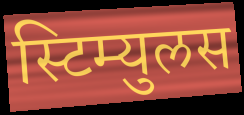
स्टिम्युलस